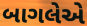
બાગલેએ